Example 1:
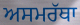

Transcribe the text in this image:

ਅਸਮਰੱਥਾ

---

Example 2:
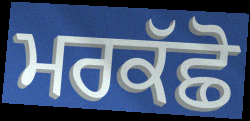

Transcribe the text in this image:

ਮਰਕੱਛੋ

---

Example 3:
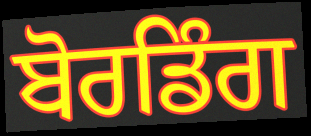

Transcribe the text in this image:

ਬੋਰਡਿੰਗ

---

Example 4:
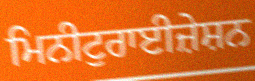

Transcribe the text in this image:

ਮਿਨੀਟੁਰਾਈਜ਼ੇਸ਼ਨ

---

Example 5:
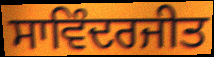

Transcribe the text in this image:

ਸਾਵਿੰਦਰਜੀਤ